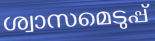
ശ്വാസമെടുപ്പ്